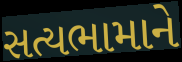
સત્યભામાને